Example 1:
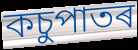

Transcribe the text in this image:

কচুপাতৰ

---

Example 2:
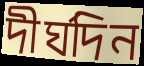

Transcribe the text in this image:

দীৰ্ঘদিন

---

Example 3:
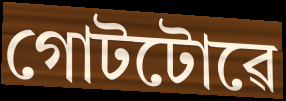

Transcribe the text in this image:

গোটটোৱে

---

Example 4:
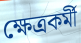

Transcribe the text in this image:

ক্ষেত্ৰকৰ্মী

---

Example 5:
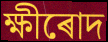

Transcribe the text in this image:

ক্ষীৰোদ